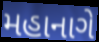
મહાનાગે